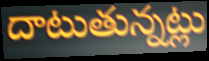
దాటుతున్నట్లు